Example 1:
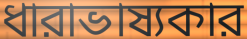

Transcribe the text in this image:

ধারাভাষ্যকার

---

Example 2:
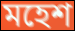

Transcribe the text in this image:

মহেশ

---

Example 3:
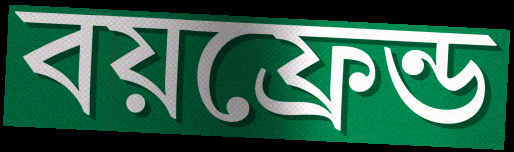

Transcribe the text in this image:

বয়ফ্রেন্ড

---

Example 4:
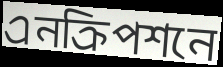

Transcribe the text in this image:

এনক্রিপশনে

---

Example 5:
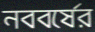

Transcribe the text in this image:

নববর্ষের